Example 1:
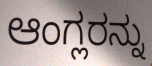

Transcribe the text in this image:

ಆಂಗ್ಲರನ್ನು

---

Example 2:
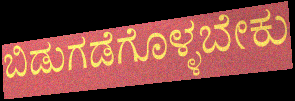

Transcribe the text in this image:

ಬಿಡುಗಡೆಗೊಳ್ಳಬೇಕು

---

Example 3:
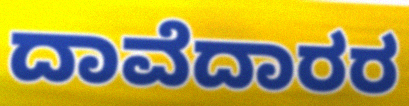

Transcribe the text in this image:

ದಾವೆದಾರರ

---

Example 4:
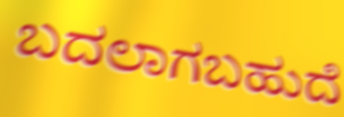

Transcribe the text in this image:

ಬದಲಾಗಬಹುದೆ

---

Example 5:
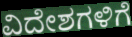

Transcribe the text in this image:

ವಿದೇಶಗಳಿಗೆ